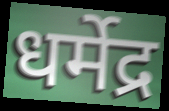
धर्मेद्र